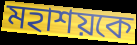
মহাশয়কে